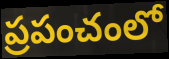
ప్రపంచంలో